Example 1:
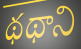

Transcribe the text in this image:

థథాని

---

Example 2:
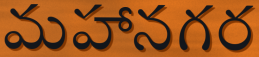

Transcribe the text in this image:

మహానగర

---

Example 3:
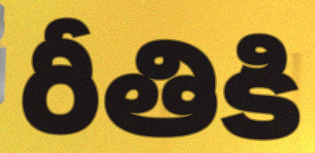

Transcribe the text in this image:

రీతికి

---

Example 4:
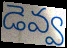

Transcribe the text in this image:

డెవ్వ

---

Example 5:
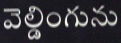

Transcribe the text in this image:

వెల్డింగును